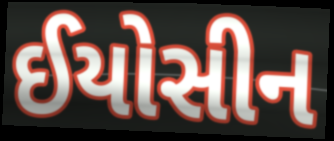
ઈયોસીન